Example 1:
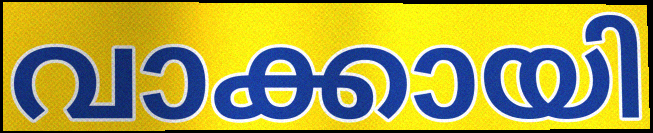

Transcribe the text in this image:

വാക്കായി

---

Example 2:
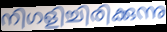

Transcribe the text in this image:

നിഗളിച്ചിരിക്കുന്നു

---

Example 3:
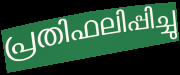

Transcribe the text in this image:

പ്രതിഫലിപ്പിച്ചു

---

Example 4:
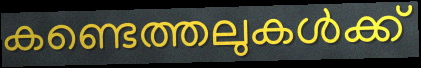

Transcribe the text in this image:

കണ്ടെത്തലുകൾക്ക്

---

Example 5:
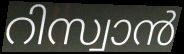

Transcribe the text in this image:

റിസ്വാൻ